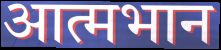
आत्मभान